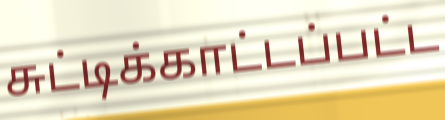
சுட்டிக்காட்டப்பட்ட